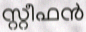
സ്റ്റീഫൻ